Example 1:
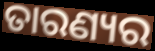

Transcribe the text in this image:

ତାରଣ୍ୟର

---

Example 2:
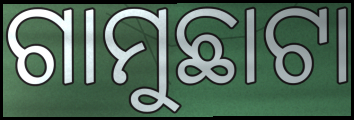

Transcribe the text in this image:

ଗାମୁଛାଟା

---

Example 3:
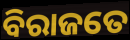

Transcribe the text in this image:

ବିରାଜତେ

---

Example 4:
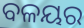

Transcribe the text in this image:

ବଳୟର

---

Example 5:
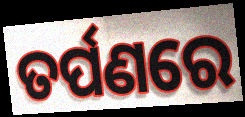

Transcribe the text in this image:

ତର୍ପଣରେ